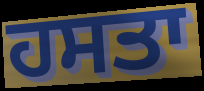
ਹਸਤਾ